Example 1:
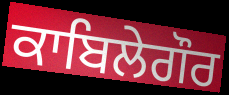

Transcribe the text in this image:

ਕਾਬਿਲੇਗੌਰ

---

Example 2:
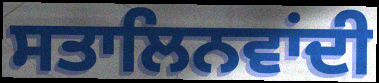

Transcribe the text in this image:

ਸਤਾਲਿਨਵਾਂਦੀ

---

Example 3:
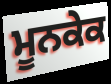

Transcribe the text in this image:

ਮੂਨਕੇਕ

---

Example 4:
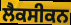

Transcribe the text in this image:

ਲੈਕਸੀਕਨ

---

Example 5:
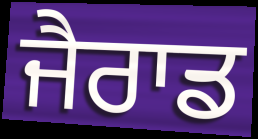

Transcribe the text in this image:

ਜੈਰਾਡ